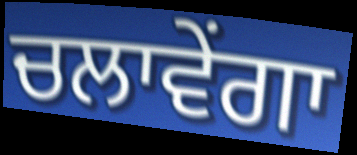
ਚਲਾਵੇਂਗਾ